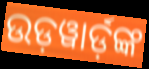
ଉଡ଼ୱାର୍ଡ଼ଙ୍କ